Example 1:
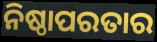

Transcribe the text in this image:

ନିଷ୍ଠାପରତାର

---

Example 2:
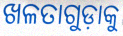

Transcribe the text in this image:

ଖଳତାଗୁଡ଼ାକୁ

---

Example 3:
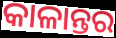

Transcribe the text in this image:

କାଳାନ୍ତର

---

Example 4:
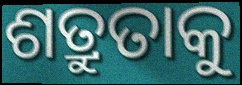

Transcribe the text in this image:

ଶତ୍ରୁତାକୁ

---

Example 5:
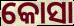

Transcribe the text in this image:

କୋସା